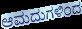
ಆಮದುಗಳಿಂದ